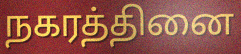
நகரத்தினை